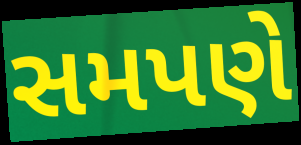
સમપણે